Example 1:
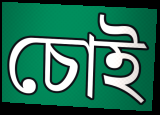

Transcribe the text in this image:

চোই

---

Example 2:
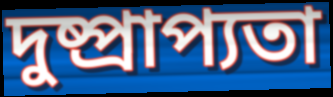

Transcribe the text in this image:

দুষ্প্রাপ্যতা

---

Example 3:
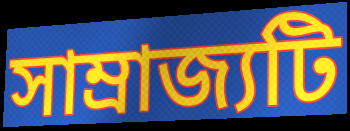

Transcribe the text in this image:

সাম্রাজ্যটি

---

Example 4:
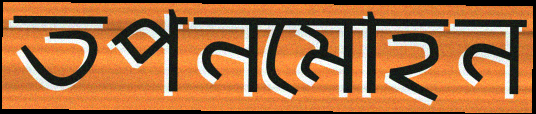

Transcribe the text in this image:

তপনমোহন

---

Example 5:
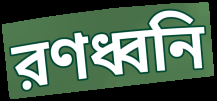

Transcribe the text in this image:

রণধ্বনি